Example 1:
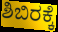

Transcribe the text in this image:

ಶಿಬಿರಕ್ಕೆ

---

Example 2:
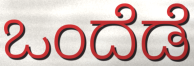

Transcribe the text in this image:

ಒಂದೆಡೆ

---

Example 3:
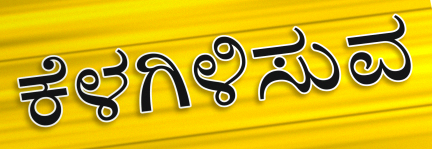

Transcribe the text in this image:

ಕೆಳಗಿಳಿಸುವ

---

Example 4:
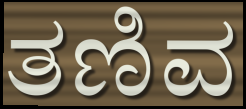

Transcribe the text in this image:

ತಣಿವ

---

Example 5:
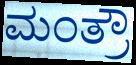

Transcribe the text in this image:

ಮಂತ್ರೌ